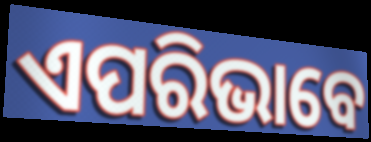
ଏପରିଭାବେ